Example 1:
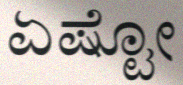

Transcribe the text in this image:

ಏಷ್ಟೋ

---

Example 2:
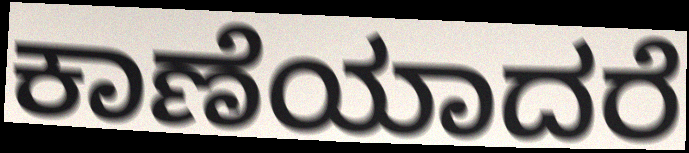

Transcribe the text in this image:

ಕಾಣೆಯಾದರೆ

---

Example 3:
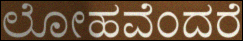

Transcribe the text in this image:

ಲೋಹವೆಂದರೆ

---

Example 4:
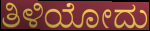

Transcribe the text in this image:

ತಿಳಿಯೋದು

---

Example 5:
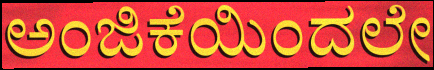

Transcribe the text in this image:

ಅಂಜಿಕೆಯಿಂದಲೇ